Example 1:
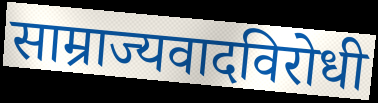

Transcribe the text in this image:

साम्राज्यवादविरोधी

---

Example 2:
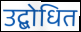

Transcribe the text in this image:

उद्बोधित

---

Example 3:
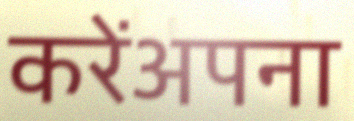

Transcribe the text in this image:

करेंअपना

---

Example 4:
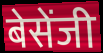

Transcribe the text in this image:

बेसेंजी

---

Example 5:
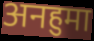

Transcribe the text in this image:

अनहुमा